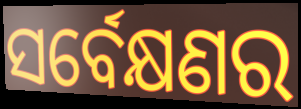
ସର୍ବେକ୍ଷଣର